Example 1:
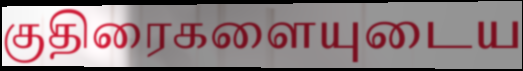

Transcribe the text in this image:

குதிரைகளையுடைய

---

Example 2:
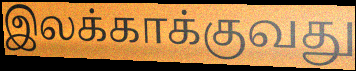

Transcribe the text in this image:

இலக்காக்குவது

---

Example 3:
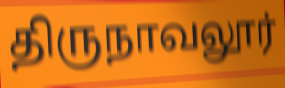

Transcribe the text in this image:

திருநாவலூர்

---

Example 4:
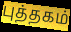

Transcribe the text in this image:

புத்தகம்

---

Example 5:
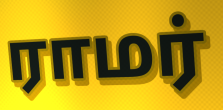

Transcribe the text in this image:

ராமர்